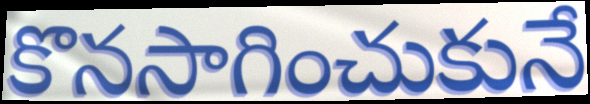
కొనసాగించుకునే